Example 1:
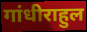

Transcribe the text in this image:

गांधीराहुल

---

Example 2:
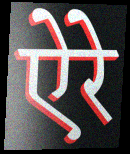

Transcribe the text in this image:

ऐरे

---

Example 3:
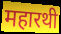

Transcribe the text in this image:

महारथी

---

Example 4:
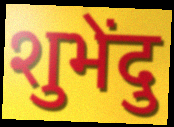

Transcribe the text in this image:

शुभेंदु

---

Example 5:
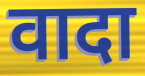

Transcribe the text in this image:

वादा